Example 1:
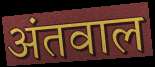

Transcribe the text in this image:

अंतवाल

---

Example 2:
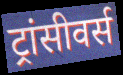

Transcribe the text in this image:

ट्रांसीवर्स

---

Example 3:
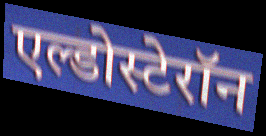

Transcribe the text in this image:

एल्डोस्टेरॉन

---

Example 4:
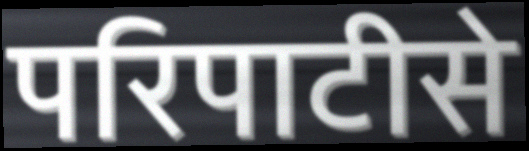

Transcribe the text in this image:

परिपाटीसे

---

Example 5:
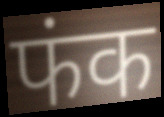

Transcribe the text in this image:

फंक